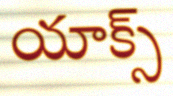
యాక్స్